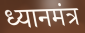
ध्यानमंत्र